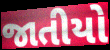
જાતીયો